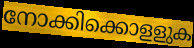
നോക്കിക്കൊളളുക